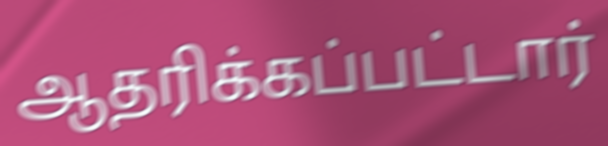
ஆதரிக்கப்பட்டார்